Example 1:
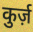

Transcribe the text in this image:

कुर्ज़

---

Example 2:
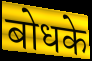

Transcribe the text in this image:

बोधके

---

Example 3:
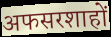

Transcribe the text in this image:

अफसरशाहों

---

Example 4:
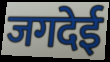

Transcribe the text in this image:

जगदेई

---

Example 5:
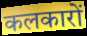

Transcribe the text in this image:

कलकारों